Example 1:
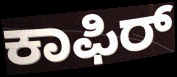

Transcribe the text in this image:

ಕಾಫಿರ್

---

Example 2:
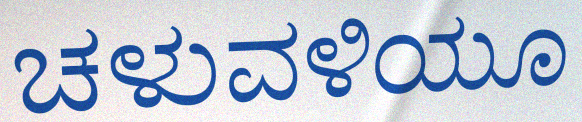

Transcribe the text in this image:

ಚಳುವಳಿಯೂ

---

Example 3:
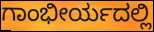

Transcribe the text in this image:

ಗಾಂಭೀರ್ಯದಲ್ಲಿ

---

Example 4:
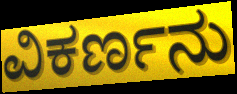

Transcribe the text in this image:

ವಿಕರ್ಣನು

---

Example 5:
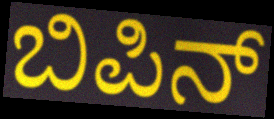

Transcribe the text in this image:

ಬಿಪಿನ್